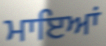
ਮਾਇਆਂ